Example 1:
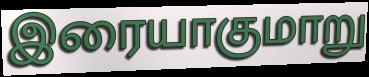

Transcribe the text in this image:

இரையாகுமாறு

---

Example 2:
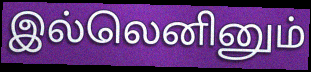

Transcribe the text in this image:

இல்லெனினும்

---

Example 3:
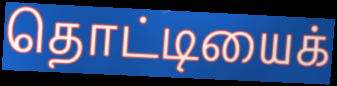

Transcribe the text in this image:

தொட்டியைக்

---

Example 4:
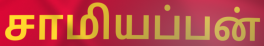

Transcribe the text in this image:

சாமியப்பன்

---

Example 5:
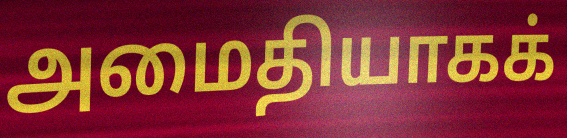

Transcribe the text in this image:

அமைதியாகக்